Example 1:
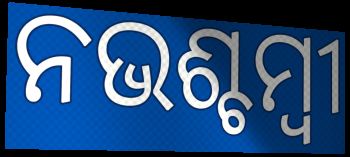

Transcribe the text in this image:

ନଭଶ୍ଚମ୍ବୀ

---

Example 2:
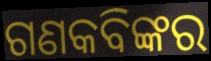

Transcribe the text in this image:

ଗଣକବିଙ୍କର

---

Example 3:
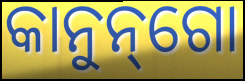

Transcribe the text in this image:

କାନୁନ୍‌ଗୋ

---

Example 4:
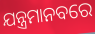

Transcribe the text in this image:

ଯନ୍ତ୍ରମାନବରେ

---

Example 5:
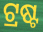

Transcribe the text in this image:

ଟ୍ରଷ୍ଟ